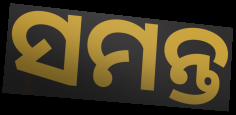
ସମନ୍ତ